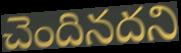
చెందినదని